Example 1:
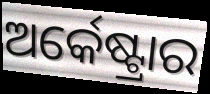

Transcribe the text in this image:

ଅର୍କେଷ୍ଟ୍ରାର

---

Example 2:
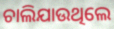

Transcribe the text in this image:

ଚାଲିଯାଉଥିଲେ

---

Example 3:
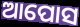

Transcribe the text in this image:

ଆପୋସ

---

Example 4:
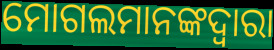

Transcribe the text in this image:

ମୋଗଲମାନଙ୍କଦ୍ୱାରା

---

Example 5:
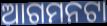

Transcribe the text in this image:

ଆଗମନଟା